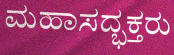
ಮಹಾಸದ್ಭಕ್ತರು